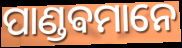
ପାଣ୍ଡଵମାନେ